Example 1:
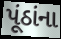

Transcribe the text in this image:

પૂંઠાંના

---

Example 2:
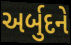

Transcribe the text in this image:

અર્બુદને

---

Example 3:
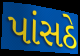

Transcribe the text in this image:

પાંસઠે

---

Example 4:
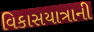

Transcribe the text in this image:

વિકાસયાત્રાની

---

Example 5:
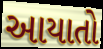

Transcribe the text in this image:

આયાતો